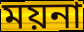
ময়না